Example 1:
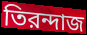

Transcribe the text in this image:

তিরন্দাজ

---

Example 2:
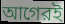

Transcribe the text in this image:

আগেরই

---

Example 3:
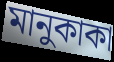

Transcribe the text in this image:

মানুকাকা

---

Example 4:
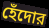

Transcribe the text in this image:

হেঁদোর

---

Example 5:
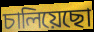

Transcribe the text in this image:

চালিয়েছো